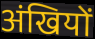
अंखियों